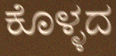
ಕೊಳ್ಳದ